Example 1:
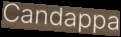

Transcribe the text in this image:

Candappa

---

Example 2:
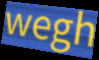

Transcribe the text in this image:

wegh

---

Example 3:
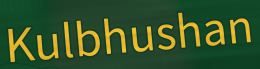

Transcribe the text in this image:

Kulbhushan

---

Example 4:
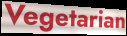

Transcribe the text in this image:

Vegetarian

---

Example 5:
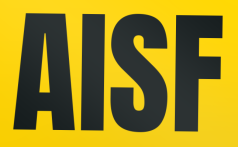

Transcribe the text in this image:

AISF